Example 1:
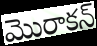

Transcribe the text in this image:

మొరాకన్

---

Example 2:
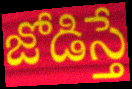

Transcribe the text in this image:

జోడిస్తే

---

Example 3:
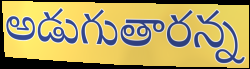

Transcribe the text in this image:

అడుగుతారన్న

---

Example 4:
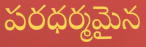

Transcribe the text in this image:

పరధర్మమైన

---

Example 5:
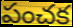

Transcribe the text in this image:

పంచక